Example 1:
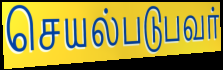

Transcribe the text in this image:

செயல்படுபவர்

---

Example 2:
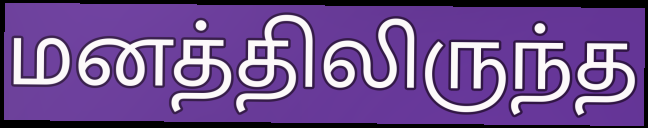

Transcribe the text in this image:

மனத்திலிருந்த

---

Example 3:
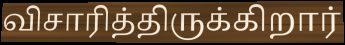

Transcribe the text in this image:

விசாரித்திருக்கிறார்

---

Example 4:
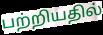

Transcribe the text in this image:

பற்றியதில்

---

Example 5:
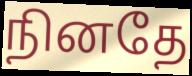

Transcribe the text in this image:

நினதே